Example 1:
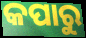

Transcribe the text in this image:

କପାରୁ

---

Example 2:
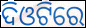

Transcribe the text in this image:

ଦିଓଟିରେ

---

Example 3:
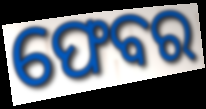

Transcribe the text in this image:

ଫେବର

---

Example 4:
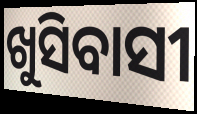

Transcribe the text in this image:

ଖୁସିବାସୀ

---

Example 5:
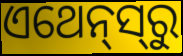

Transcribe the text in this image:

ଏଥେନ୍‌ସ୍‌ରୁ